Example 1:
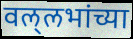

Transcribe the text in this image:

वल्लभांच्या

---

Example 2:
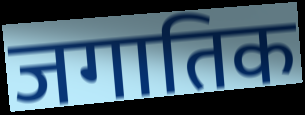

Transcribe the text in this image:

जगातिक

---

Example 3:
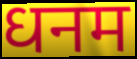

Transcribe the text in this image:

धनम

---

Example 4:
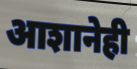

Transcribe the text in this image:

आशानेही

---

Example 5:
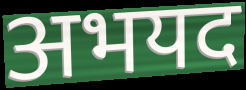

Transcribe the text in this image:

अभयद